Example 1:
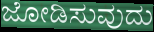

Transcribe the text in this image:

ಜೋಡಿಸುವುದು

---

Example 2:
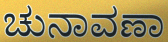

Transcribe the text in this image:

ಚುನಾವಣಾ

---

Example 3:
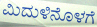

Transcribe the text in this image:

ಮಿದುಳಿನೊಳಗೆ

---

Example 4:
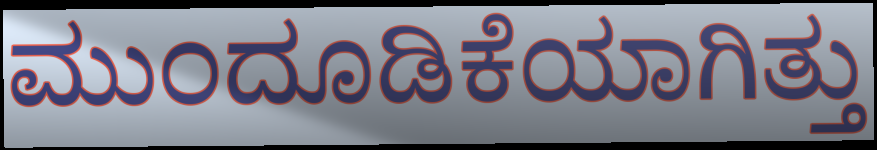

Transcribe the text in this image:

ಮುಂದೂಡಿಕೆಯಾಗಿತ್ತು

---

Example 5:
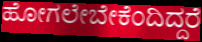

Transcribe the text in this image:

ಹೋಗಲೇಬೇಕೆಂದಿದ್ದರೆ